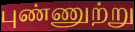
புண்ணுற்று